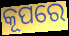
କୂପରେ